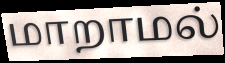
மாறாமல்